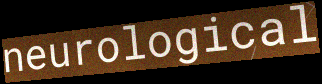
neurological